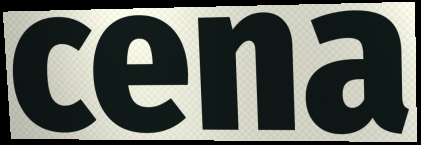
cena